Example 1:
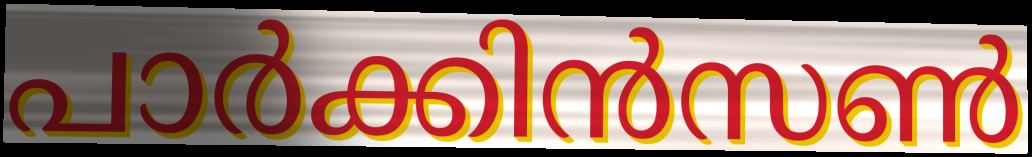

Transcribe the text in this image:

പാർക്കിൻസൺ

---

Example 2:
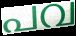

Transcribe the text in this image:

പവ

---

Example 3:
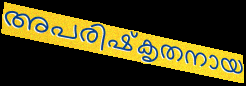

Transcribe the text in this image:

അപരിഷ്‌കൃതനായ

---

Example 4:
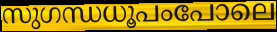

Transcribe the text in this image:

സുഗന്ധധൂപംപോലെ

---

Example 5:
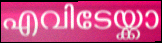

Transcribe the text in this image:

എവിടേയ്ക്കാ